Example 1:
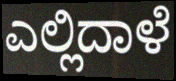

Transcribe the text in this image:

ಎಲ್ಲಿದಾಳೆ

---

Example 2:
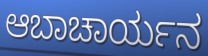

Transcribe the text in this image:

ಆಬಾಚಾರ್ಯನ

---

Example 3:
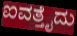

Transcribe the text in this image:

ಐವತ್ತೈದು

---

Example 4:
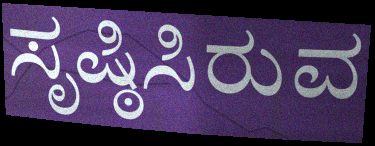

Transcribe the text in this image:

ಸೃಷ್ಠಿಸಿರುವ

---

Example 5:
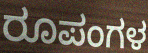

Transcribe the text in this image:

ರೂಪಂಗಳ